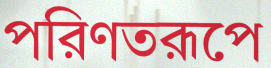
পরিণতরূপে